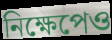
নিক্ষেপেও